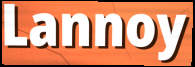
Lannoy